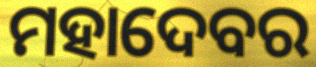
ମହାଦେବର